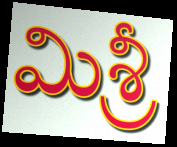
మిశ్రీ